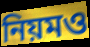
নিয়মও